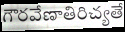
గౌరవేణాతిరిచ్యతే